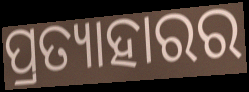
ପ୍ରତ୍ୟାହାରର